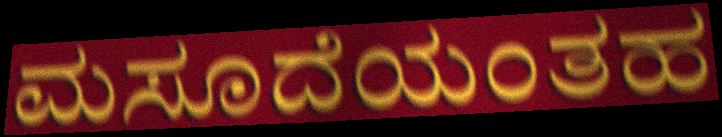
ಮಸೂದೆಯಂತಹ